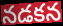
నడకన